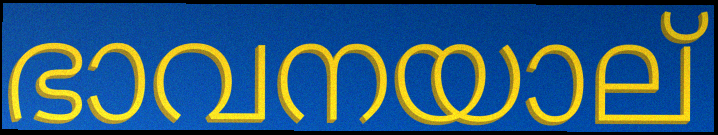
ഭാവനയാല്